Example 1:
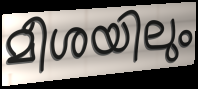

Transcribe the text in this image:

മീശയിലും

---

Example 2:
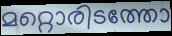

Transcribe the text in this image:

മറ്റൊരിടത്തോ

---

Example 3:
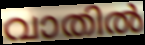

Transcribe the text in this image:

വാതിൽ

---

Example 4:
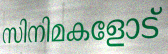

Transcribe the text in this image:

സിനിമകളോട്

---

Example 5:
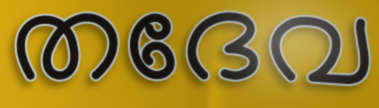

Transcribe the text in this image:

തദേവ